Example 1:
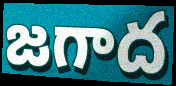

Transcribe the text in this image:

జగాద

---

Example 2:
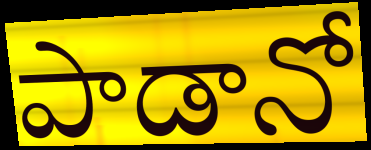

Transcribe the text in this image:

పాడానో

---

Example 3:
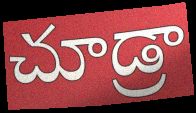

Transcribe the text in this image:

చూడ్రా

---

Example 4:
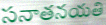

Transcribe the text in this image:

సనాతనయతి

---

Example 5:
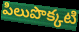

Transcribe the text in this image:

పిలుపొక్కటి